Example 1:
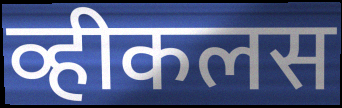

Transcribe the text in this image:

व्हीकलस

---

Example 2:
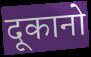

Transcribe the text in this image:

दूकानो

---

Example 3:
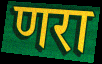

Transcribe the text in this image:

णरा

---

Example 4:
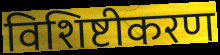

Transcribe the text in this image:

विशिष्टीकरण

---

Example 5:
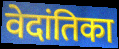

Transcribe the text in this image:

वेदांतिका